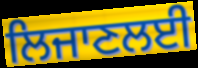
ਲਿਜਾਣਲਈ